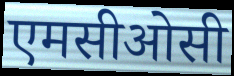
एमसीओसी